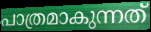
പാത്രമാകുന്നത്